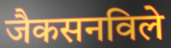
जैकसनविले